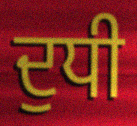
ਦੁਧੀ